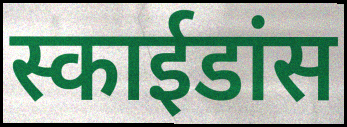
स्काईडांस